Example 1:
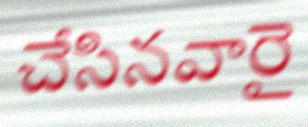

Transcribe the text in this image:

చేసినవారై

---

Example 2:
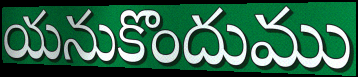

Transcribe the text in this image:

యనుకొందుము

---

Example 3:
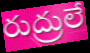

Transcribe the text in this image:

రుద్రులే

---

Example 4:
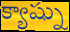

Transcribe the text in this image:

క్యాష్ను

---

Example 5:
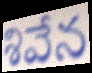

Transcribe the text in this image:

శివేన